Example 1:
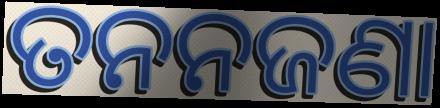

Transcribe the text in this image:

ତନନଜଣା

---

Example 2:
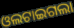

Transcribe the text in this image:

ଓଲଟାଇଗଲା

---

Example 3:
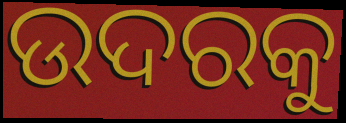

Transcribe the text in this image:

ଉଦରକୁ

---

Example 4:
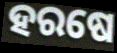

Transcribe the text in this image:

ହରଷେ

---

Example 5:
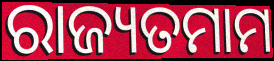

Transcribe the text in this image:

ରାଜ୍ୟତମାମ